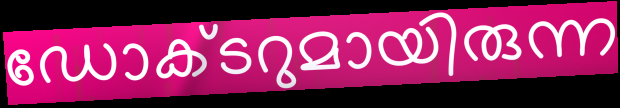
ഡോക്ടറുമായിരുന്ന